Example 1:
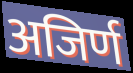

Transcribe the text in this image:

अजिर्ण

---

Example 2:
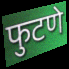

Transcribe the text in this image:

फुटणे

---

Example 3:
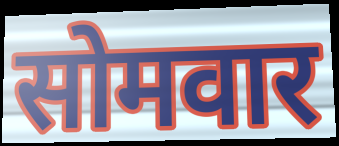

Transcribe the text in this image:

सोमवार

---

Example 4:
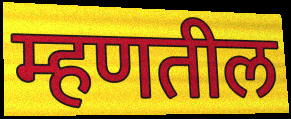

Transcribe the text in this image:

म्हणतील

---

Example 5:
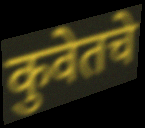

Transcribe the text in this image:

कुवेतचे